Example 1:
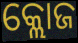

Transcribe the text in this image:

କ୍ଲୋଜ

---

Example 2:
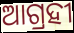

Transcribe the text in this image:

ଆଗ୍ରହୀ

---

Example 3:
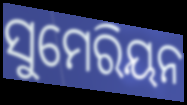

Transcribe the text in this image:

ସୁମେରିୟନ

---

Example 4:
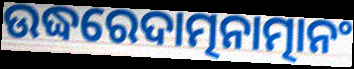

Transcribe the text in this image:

ଉଦ୍ଧରେଦାତ୍ମନାତ୍ମାନଂ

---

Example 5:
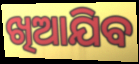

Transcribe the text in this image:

ଖିଆଯିବ